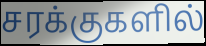
சரக்குகளில்